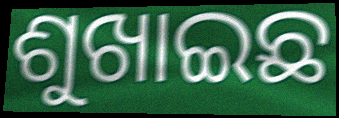
ଶୁଖାଇଛ